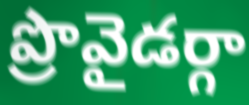
ప్రొవైడర్గా